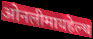
ओनलीमायहेल्थ